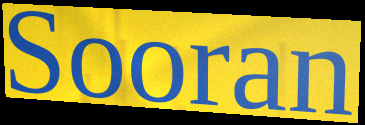
Sooran